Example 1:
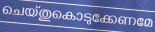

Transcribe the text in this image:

ചെയ്തുകൊടുക്കേണമേ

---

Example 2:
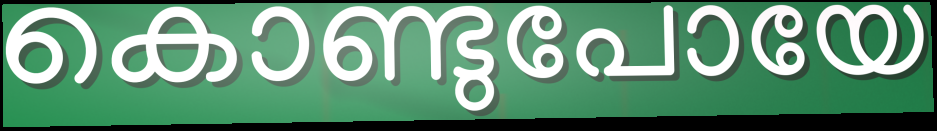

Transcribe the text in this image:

കൊണ്ടുപോയേ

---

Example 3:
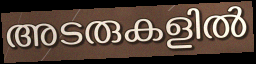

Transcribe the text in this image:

അടരുകളിൽ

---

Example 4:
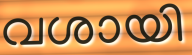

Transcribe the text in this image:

വശായി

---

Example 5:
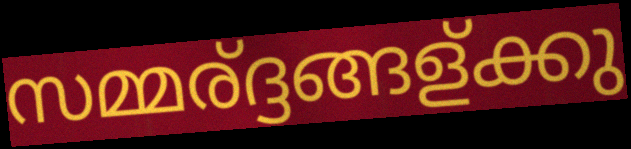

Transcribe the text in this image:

സമ്മര്ദ്ദങ്ങള്ക്കു